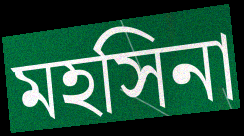
মহসিনা